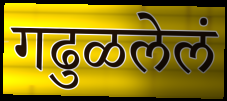
गढुळलेलं